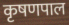
कृषणपाल